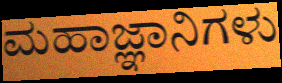
ಮಹಾಜ್ಞಾನಿಗಳು